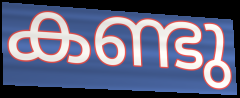
കണ്ടു